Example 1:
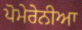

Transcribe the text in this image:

ਪੋਮੇਰੇਨੀਆ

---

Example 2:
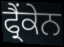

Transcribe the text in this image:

ਫ੍ਰੈਂਕੇਨ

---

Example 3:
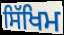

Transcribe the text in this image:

ਸਿੱਖਿਮ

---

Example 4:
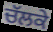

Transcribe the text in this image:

ਚੱਲਕੇ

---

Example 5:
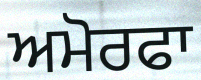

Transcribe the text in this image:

ਅਮੋਰਫਾ